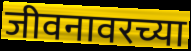
जीवनावरच्या